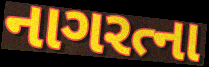
નાગરત્ના